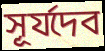
সূর্যদেব